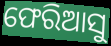
ଫେରିଆସୁ